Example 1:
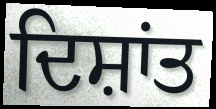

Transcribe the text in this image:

ਦਿਸ਼ਾਂਤ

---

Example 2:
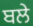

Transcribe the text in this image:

ਬਲੇ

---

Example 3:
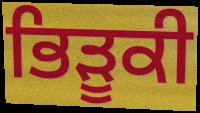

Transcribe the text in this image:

ਭਿੜੂਕੀ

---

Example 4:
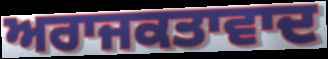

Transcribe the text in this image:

ਅਰਾਜਕਤਾਵਾਦ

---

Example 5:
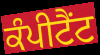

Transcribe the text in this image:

ਕੰਪੀਟੈਂਟ